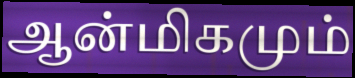
ஆன்மிகமும்